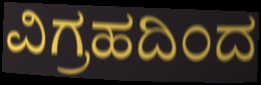
ವಿಗ್ರಹದಿಂದ